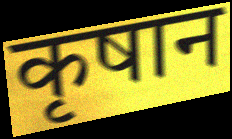
कृषान